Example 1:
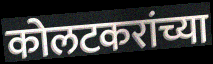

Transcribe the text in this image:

कोलटकरांच्या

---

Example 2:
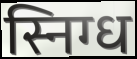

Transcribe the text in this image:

स्‍निग्ध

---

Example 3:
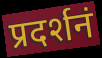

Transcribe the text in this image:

प्रदर्शनं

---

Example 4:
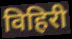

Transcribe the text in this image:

विहिरी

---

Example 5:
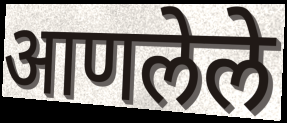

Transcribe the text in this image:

आणलेले